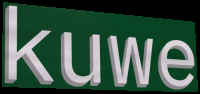
kuwe